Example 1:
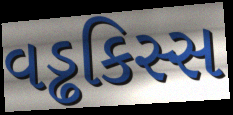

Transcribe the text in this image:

વડ્ઢકિસ્સ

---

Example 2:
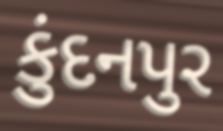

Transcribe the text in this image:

કુંદનપુર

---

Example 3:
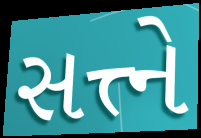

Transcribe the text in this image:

સત્ત્ને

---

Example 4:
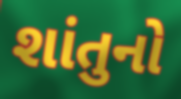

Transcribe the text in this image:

શાંતુનો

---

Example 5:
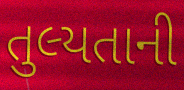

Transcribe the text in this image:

તુલ્યતાની